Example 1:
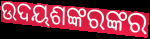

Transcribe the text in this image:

ଉଦୟଶଙ୍କରଙ୍କର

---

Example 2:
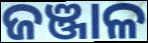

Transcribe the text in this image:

ଜଞ୍ଜାଳ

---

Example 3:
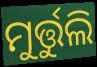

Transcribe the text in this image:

ମୁର୍ତ୍ତୁଲି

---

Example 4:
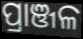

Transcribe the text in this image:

ପ୍ରାଞ୍ଜଳ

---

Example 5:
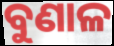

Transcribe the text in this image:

ବୁଣାଳ